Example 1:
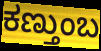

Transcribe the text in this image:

ಕಣ್ತುಂಬ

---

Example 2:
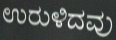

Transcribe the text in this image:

ಉರುಳಿದವು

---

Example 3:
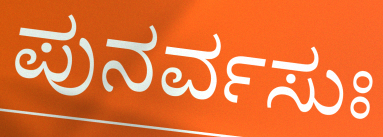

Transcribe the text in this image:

ಪುನರ್ವಸುಃ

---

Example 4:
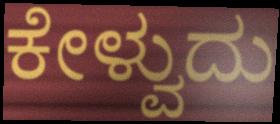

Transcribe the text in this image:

ಕೇಳ್ವುದು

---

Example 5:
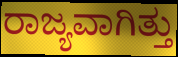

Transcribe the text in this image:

ರಾಜ್ಯವಾಗಿತ್ತು